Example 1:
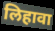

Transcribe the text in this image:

लिहावा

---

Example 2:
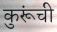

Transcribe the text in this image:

कुरूंची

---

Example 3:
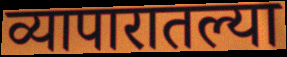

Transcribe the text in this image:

व्यापारातल्या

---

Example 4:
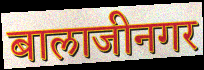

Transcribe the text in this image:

बालाजीनगर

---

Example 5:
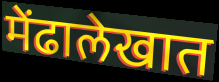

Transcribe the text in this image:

मेंढालेखात